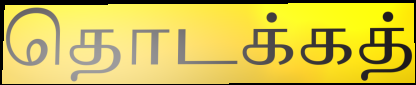
தொடக்கத்